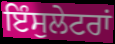
ਇੰਸੁਲੇਟਰਾਂ